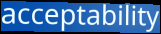
acceptability